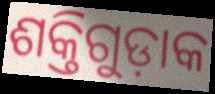
ଶକ୍ତିଗୁଡ଼ାକ